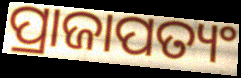
ପ୍ରାଜାପତ୍ୟଂ